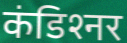
कंडिश्नर